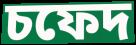
চফেদ